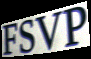
FSVP